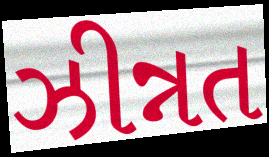
ઝીન્નત